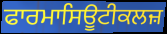
ਫਾਰਮਾਸਿਊਟੀਕਲਜ਼